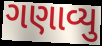
ગણાવ્યુ